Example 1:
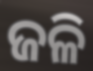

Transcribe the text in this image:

ଜଳି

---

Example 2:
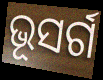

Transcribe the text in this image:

ଭୂସର୍ଗ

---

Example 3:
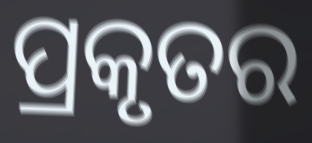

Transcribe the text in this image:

ପ୍ରକୃତର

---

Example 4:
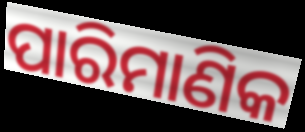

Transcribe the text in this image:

ପାରିମାଣିକ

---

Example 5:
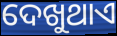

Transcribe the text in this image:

ଦେଖୁଥାଏ